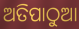
ଅତିପାଠୁଆ